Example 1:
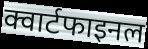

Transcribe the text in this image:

क्वार्टफाइनल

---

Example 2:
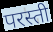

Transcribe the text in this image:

परस्ती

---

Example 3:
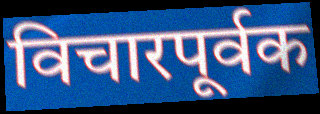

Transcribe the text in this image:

विचारपूर्वक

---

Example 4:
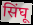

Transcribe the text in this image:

सिंघू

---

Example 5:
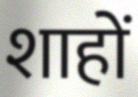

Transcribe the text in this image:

शाहों